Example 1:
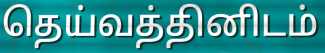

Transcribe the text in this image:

தெய்வத்தினிடம்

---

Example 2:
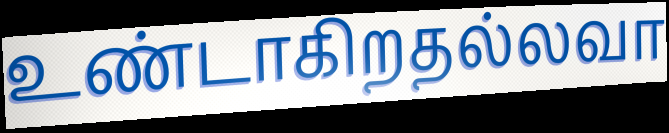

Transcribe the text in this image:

உண்டாகிறதல்லவா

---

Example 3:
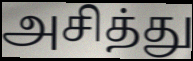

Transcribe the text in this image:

அசித்து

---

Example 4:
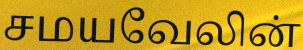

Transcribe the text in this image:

சமயவேலின்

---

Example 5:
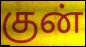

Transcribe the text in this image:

குன்